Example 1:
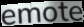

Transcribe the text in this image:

emote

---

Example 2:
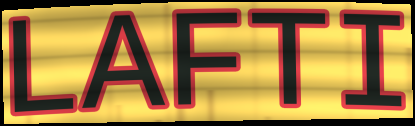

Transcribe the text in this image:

LAFTI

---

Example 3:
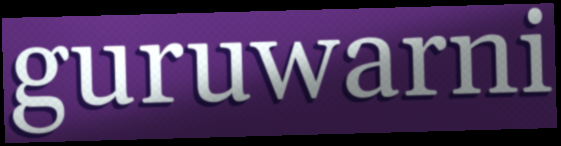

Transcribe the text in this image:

guruwarni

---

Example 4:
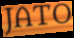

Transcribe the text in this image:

JATO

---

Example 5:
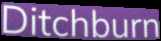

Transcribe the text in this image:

Ditchburn